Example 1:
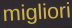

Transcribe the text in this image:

migliori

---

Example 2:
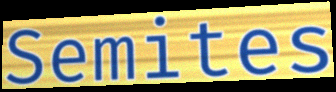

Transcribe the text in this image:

Semites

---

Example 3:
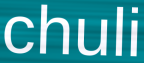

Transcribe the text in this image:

chuli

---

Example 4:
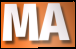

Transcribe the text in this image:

MA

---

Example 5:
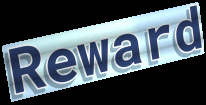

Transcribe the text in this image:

Reward